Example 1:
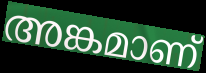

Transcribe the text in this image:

അങ്കമാണ്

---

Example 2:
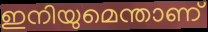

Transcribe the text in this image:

ഇനിയുമെന്താണ്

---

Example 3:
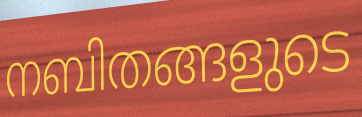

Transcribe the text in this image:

നബിതങ്ങളുടെ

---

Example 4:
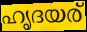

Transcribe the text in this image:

ഹൃദയര്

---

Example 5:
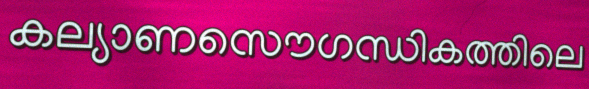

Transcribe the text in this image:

കല്യാണസൌഗന്ധികത്തിലെ